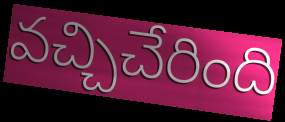
వచ్చిచేరింది